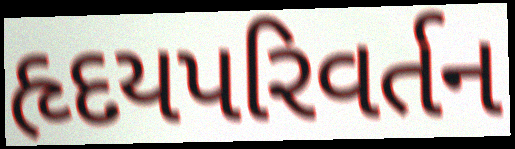
હૃદયપરિવર્તન